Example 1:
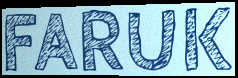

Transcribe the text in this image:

FARUK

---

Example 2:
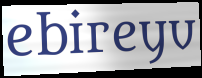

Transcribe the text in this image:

ebireyu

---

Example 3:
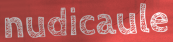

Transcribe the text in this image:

nudicaule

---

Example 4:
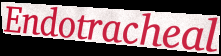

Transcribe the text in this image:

Endotracheal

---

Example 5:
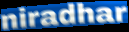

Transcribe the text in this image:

niradhar